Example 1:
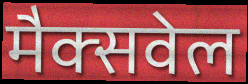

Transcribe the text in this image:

मैक्‍सवेल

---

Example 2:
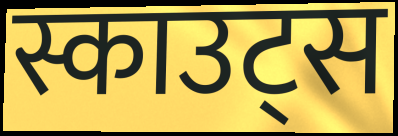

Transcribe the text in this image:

स्काउट्स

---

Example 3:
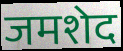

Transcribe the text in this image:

जमशेद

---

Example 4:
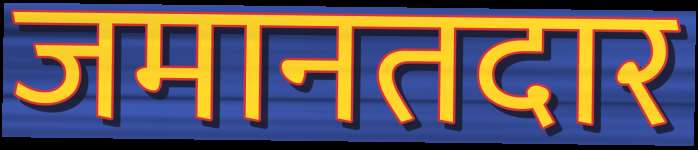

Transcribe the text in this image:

जमानतदार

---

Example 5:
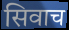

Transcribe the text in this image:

सिवाच